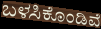
ಬಳಸಿಕೊಂಡಿವೆ